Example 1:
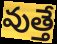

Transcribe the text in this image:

వుత్తే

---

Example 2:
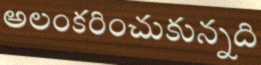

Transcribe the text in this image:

అలంకరించుకున్నది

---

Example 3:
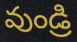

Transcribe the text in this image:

వుండ్రి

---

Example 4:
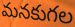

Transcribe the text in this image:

మనకుగల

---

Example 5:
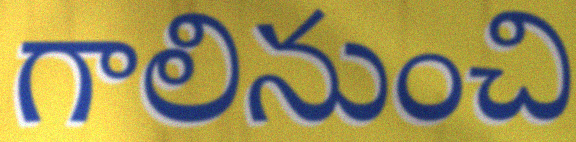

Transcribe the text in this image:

గాలినుంచి